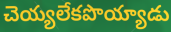
చెయ్యలేకపొయ్యాడు